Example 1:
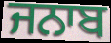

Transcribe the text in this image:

ਜਨਾਬ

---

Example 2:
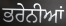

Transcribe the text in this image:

ਭਰੇਨੀਆਂ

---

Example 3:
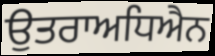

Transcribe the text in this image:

ਉਤਰਾਅਧਿਐਨ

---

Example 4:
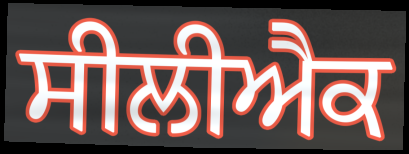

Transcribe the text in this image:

ਸੀਲੀਐਕ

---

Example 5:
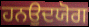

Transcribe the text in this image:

ਹਨਉਦਯੋਗ